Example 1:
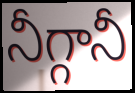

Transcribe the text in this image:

నీగ్గానీ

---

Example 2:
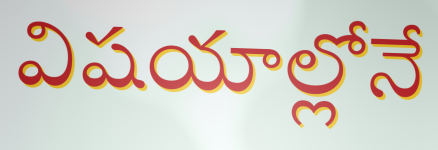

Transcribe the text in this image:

విషయాల్లోనే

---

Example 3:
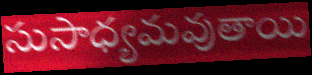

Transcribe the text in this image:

సుసాధ్యమవుతాయి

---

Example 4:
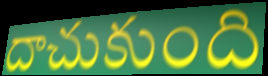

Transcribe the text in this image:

దాచుకుంది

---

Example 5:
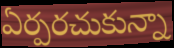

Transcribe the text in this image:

ఏర్పరచుకున్నా